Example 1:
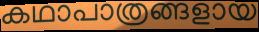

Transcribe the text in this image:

കഥാപാത്രങ്ങളായ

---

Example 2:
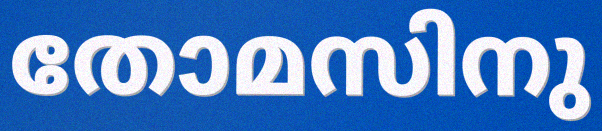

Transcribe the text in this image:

തോമസിനു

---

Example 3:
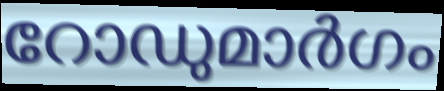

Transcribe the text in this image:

റോഡുമാർഗം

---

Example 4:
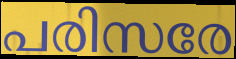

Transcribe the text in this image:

പരിസരേ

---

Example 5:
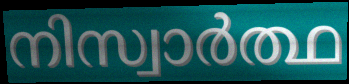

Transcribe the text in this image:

നിസ്വാർത്ഥ